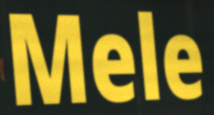
Mele